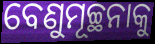
ବେଣୁମୂଚ୍ଛନାକୁ